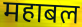
महाबल